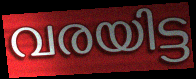
വരയിട്ട